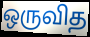
ஒருவித